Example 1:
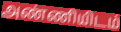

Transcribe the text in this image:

அண்ணியிடம்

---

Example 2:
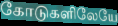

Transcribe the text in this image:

கோடுகளிலேயே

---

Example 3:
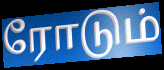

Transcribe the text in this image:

ரோடும்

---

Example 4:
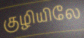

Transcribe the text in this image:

குழியிலே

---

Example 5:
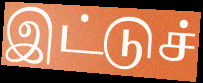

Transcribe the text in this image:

இட்டுச்